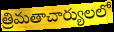
త్రిమతాచార్యులలో